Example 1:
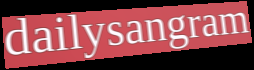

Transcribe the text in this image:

dailysangram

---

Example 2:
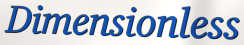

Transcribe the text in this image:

Dimensionless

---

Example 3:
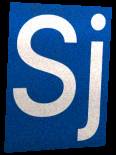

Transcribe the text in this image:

Sj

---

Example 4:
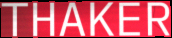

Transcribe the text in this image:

THAKER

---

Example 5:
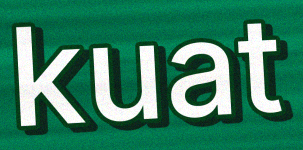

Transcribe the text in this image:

kuat